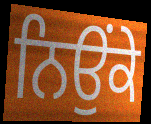
ਨਿਉਂਕੇ